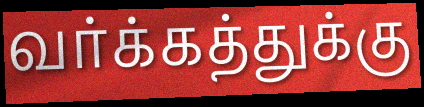
வர்க்கத்துக்கு